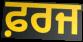
ਫ਼ਰਜ